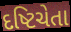
દષ્ટિચેતા